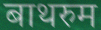
बाथरुम